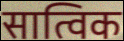
सात्विक